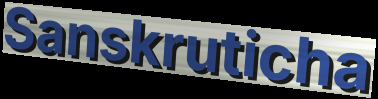
Sanskruticha